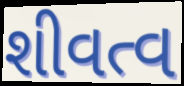
શીવત્વ